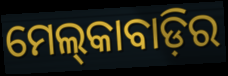
ମେଲ୍‍କାବାଡ଼ିର